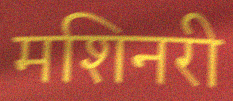
मशिनरी